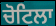
ਚੋਟਿਲਾ